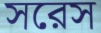
সরেস